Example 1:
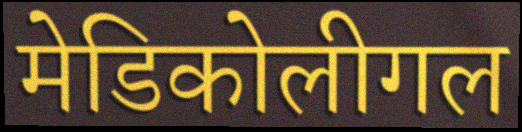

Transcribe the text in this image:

मेडिकोलीगल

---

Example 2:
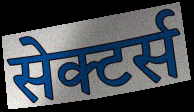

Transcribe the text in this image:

सेक्‍टर्स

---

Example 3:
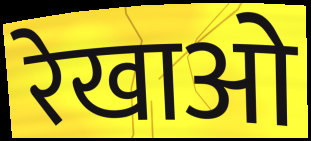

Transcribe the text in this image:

रेखाओ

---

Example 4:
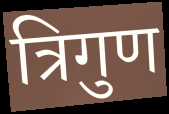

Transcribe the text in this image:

त्रिगुण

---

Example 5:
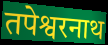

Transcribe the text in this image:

तपेश्वरनाथ